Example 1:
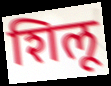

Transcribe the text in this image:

शिलू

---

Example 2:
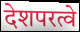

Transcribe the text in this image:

देशपरत्वे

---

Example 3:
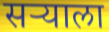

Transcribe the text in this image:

सऱ्याला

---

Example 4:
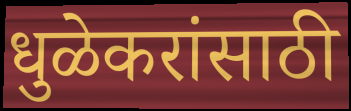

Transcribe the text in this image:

धुळेकरांसाठी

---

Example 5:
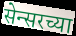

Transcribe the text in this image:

सेन्सरच्या